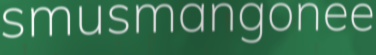
smusmangonee